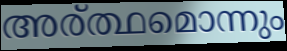
അര്ത്ഥമൊന്നും